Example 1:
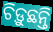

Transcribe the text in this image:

ଚିଡ଼ୁଛନ୍ତି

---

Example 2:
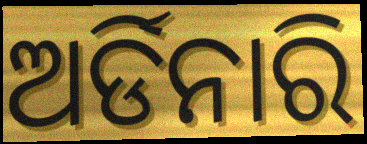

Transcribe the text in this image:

ଅର୍ଡିନାରି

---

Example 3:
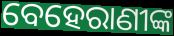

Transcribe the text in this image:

ବେହେରାଣୀଙ୍କ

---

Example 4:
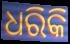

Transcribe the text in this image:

ଧରିକି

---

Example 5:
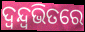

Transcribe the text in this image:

ଦ୍ୱନ୍ଦ୍ୱଭିତରେ